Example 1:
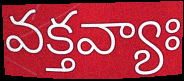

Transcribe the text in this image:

వక్తవ్యాః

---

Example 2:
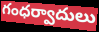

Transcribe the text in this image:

గంధర్వాదులు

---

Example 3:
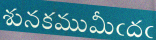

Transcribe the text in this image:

శునకముమీఁదఁ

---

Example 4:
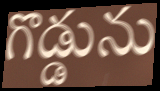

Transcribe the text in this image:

గొడ్డును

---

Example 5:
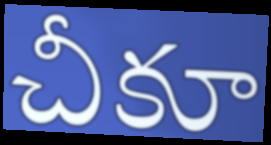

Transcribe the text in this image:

చీకూ